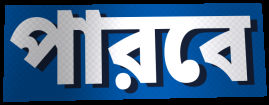
পারবে